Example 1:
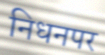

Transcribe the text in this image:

निधनपर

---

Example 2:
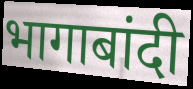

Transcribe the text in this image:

भागाबांदी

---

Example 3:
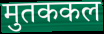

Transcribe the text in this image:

मुतककल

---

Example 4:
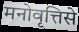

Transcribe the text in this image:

मनोवृत्तिसे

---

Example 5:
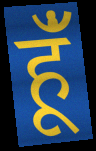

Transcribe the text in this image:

हूँं